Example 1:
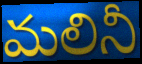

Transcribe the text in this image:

మలినీ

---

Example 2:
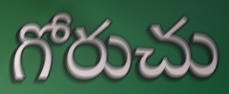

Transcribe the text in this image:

గోరుచు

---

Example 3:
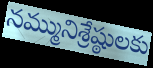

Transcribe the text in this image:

నమ్మునిశ్రేష్ఠులకు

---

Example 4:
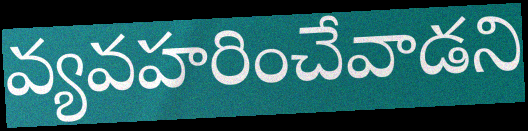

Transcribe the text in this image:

వ్యవహరించేవాడని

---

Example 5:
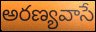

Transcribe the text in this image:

అరణ్యవాసే